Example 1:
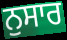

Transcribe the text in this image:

ਨੁਸਾਰ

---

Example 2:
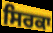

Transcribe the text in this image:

ਸਿਰਕਾ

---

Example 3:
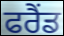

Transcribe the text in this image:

ਫਰੈਂਡ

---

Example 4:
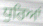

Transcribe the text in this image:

ਧੁਰਿਆਂ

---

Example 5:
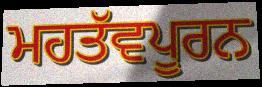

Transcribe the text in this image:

ਮਹਤੱਵਪੂਰਨ